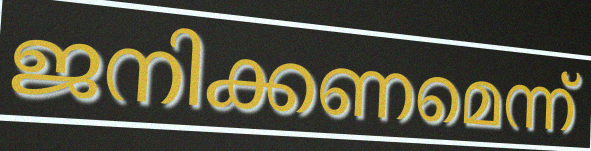
ജനിക്കണമെന്ന്